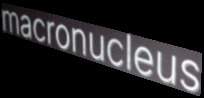
macronucleus